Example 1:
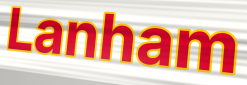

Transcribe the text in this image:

Lanham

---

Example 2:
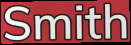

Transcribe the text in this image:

Smith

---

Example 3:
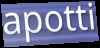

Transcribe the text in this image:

apotti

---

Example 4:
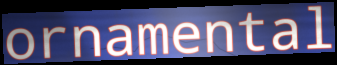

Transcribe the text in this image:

ornamental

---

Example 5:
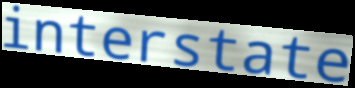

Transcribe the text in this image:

interstate